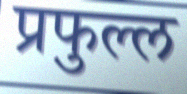
प्रफुल्ल